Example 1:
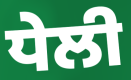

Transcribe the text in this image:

ਧੇਲੀ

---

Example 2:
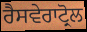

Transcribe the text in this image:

ਰੈਸਵੇਰਾਟ੍ਰੋਲ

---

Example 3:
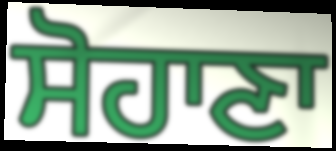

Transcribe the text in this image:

ਸੋਹਾਣਾ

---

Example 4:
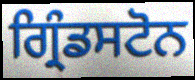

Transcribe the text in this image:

ਗ੍ਰਿੰਡਸਟੋਨ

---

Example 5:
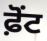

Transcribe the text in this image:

ਫ਼ੋਂਟ